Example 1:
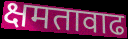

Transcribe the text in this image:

क्षमतावाढ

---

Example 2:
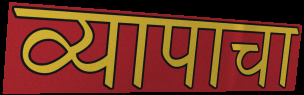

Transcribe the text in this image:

व्यापाचा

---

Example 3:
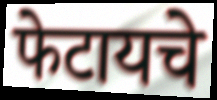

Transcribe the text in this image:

फेटायचे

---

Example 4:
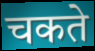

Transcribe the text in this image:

चकते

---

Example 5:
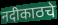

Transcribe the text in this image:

नदीकाठचे